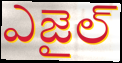
ఎజైల్